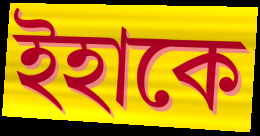
ইহাকে